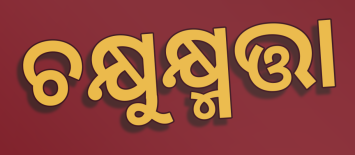
ଚକ୍ଷୁକ୍ଷ୍ମତ୍ତା